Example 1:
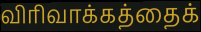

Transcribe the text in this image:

விரிவாக்கத்தைக்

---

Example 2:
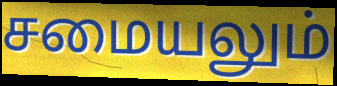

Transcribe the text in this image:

சமையலும்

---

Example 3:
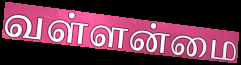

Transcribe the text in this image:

வள்ளன்மை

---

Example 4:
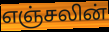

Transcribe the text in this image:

எஞ்சலின்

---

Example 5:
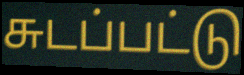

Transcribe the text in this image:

சுடப்பட்டு